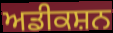
ਅਡੀਕਸ਼ਨ